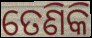
ତେଣିକି